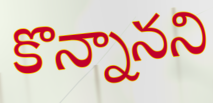
కొన్నానని